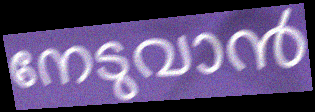
നേടുവാൻ